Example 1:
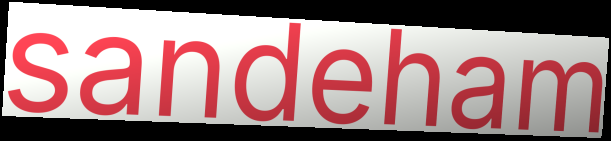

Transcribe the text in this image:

sandeham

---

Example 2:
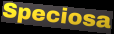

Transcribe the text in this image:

Speciosa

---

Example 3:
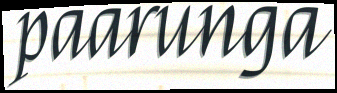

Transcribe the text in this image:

paarunga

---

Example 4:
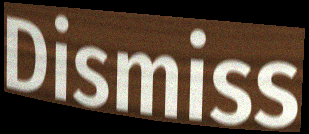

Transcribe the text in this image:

Dismiss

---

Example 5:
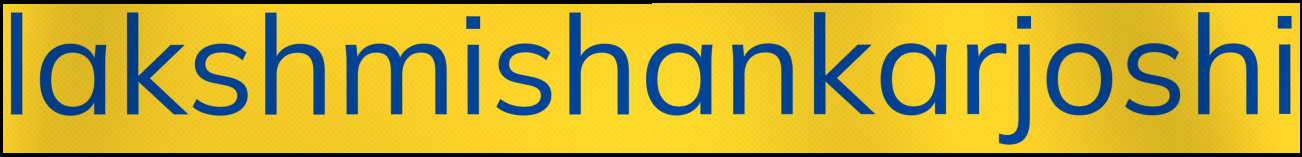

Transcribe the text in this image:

lakshmishankarjoshi